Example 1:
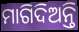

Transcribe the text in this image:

ମାଗିଦିଅନ୍ତି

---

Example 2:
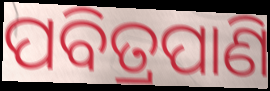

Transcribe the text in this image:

ପବିତ୍ରପାଣି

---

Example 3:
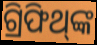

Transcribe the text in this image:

ଗ୍ରିଫିଥ୍‌ଙ୍କ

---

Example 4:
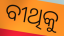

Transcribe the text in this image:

ବୀଥିକୁ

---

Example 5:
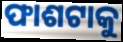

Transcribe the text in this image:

ଫାଶଟାକୁ